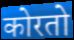
कोरतो